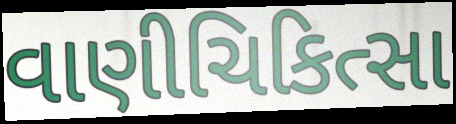
વાણીચિકિત્સા